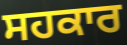
ਸਹਕਾਰ